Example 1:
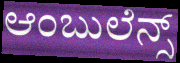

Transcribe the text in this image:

ಆಂಬುಲೆನ್ಸ್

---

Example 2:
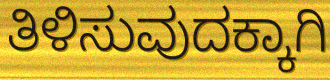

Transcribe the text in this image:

ತಿಳಿಸುವುದಕ್ಕಾಗಿ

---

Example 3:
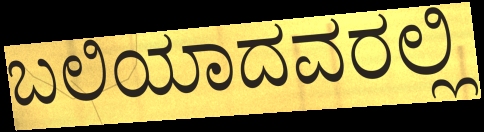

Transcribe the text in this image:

ಬಲಿಯಾದವರಲ್ಲಿ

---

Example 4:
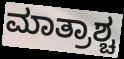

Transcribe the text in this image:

ಮಾತ್ರಾಶ್ಚ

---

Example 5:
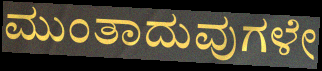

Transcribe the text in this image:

ಮುಂತಾದುವುಗಳೇ